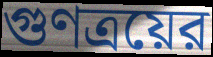
গুণত্রয়ের